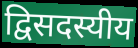
द्विसदस्यीय